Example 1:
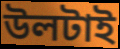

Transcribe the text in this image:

উলটাই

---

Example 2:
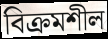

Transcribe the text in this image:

বিক্ৰমশীল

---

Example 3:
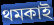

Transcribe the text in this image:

থমকাই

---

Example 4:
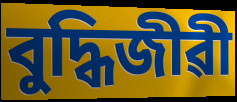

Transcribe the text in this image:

বুদ্ধিজীৱী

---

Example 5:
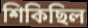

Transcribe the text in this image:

শিকিছিল